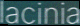
lacinia